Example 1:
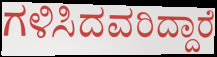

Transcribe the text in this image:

ಗಳಿಸಿದವರಿದ್ದಾರೆ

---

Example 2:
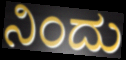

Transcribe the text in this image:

ನಿಂದು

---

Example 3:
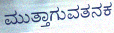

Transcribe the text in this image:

ಮುತ್ತಾಗುವತನಕ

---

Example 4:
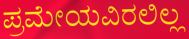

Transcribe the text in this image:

ಪ್ರಮೇಯವಿರಲಿಲ್ಲ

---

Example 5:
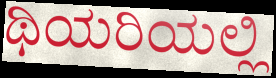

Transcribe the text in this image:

ಥಿಯರಿಯಲ್ಲಿ